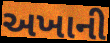
અખાની